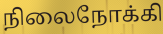
நிலைநோக்கி